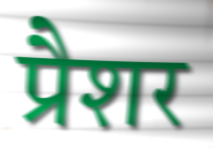
प्रैशर